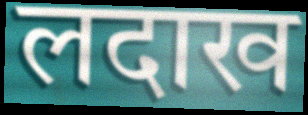
लदाख